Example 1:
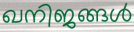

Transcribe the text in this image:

ഖനിജങ്ങൾ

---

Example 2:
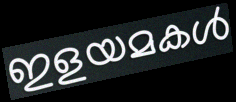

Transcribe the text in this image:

ഇളയമകൾ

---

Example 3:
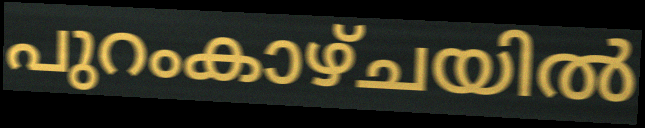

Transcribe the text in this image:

പുറംകാഴ്ചയിൽ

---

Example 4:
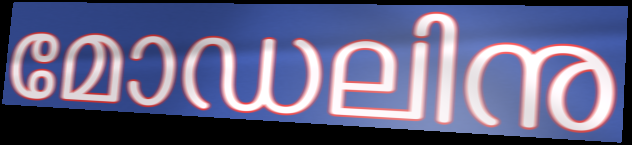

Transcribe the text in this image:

മോഡലിനു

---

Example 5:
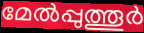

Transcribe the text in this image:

മേൽപ്പുത്തൂർ